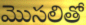
మొసలితో